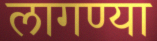
लागण्या